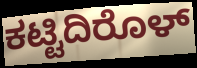
ಕಟ್ಟಿದಿರೊಳ್